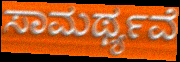
ಸಾಮರ್ಥ್ಯವೆ